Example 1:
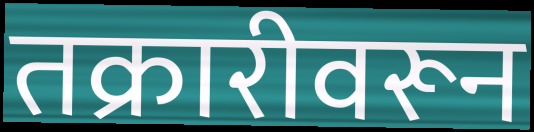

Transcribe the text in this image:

तक्रारीवरून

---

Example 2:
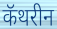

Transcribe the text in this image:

कॅथरीन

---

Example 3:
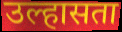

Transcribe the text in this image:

उल्हासता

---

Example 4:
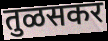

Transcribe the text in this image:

तुळसकर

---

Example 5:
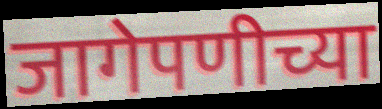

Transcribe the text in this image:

जागेपणीच्या